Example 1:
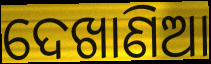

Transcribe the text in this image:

ଦେଖାଣିଆ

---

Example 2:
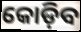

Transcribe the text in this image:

କୋଡ଼ିବ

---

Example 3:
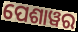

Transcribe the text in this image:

ପେଶାୱର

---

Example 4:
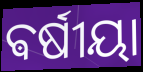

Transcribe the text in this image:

ଵର୍ଷୀୟା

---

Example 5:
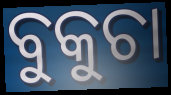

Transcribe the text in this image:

ବୁକୁଚା